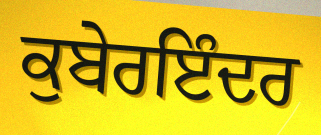
ਕੁਬੇਰਇੰਦਰ